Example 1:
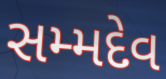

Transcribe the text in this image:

સમ્મદેવ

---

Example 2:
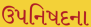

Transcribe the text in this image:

ઉપનિષદના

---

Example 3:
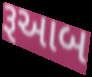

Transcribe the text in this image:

રૂઆબ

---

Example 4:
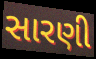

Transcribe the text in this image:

સારણી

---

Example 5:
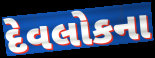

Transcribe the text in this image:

દેવલોકના